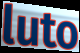
luto